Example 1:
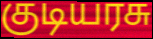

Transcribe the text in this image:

குடியரசு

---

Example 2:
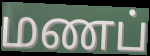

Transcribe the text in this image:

மணப்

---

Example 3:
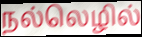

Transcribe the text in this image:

நல்லெழில்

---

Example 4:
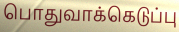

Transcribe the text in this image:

பொதுவாக்கெடுப்பு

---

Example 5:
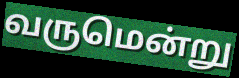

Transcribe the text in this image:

வருமென்று